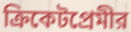
ক্রিকেটপ্রেমীর